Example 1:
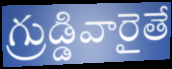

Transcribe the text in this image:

గ్రుడ్డివారైతే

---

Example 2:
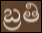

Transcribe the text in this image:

బ్రతి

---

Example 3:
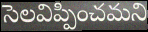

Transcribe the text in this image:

సెలవిప్పించమని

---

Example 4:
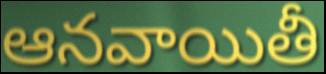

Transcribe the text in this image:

ఆనవాయితీ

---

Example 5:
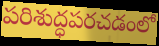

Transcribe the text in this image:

పరిశుద్ధపరచడంలో